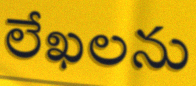
లేఖలను